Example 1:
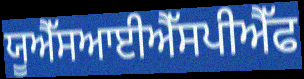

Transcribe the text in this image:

ਯੂਐੱਸਆਈਐੱਸਪੀਐੱਫ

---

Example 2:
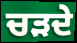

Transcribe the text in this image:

ਚੜਦੇ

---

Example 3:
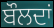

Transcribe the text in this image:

ਬੌਲਦਾਂ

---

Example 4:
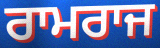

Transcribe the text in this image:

ਰਾਮਰਾਜ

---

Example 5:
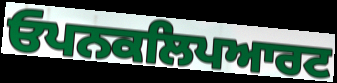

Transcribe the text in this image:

ਓਪਨਕਲਿਪਆਰਟ